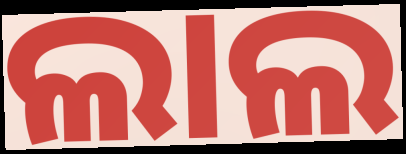
ଲାଲ